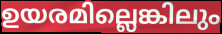
ഉയരമില്ലെങ്കിലും